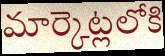
మార్కెట్లలోకి